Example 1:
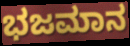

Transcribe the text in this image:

ಭಜಮಾನ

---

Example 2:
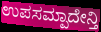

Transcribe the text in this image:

ಉಪಸಮ್ಪಾದೇನ್ತಿ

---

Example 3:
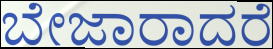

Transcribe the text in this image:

ಬೇಜಾರಾದರೆ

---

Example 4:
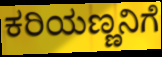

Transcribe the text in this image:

ಕರಿಯಣ್ಣನಿಗೆ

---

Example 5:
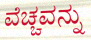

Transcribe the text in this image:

ವೆಚ್ಚವನ್ನು